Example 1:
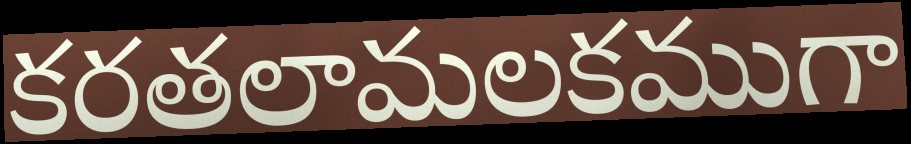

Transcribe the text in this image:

కరతలామలకముగా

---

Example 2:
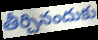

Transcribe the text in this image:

తీర్చినందుకు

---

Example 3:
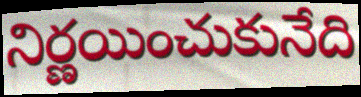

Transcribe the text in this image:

నిర్ణయించుకునేది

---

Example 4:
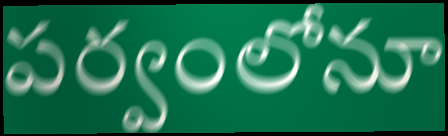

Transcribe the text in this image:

పర్వంలోనూ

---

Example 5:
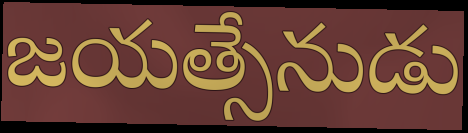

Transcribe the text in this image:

జయత్సేనుడు